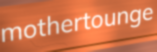
mothertounge